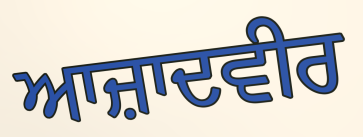
ਆਜ਼ਾਦਵੀਰ